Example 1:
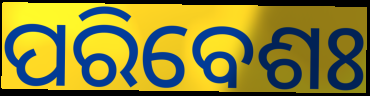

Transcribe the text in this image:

ପରିବେଶଃ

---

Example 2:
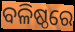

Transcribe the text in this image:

ବଳିଷ୍ଠରେ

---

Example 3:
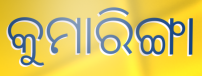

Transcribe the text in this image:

କୁମାରିଙ୍ଗା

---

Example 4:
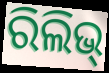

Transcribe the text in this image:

ରିଲିଭ୍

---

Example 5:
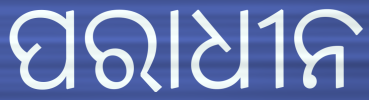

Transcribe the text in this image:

ପରାଧୀନ